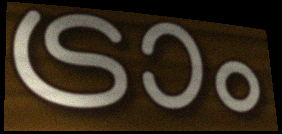
ട്രാം